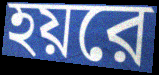
হয়রে